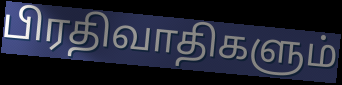
பிரதிவாதிகளும்